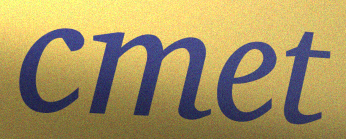
cmet